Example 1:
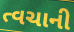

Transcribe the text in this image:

ત્વચાની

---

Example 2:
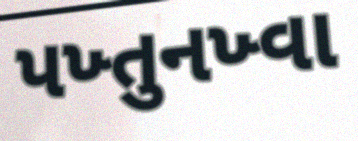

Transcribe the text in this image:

પખ્તુનખ્વા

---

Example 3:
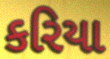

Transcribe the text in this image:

કરિયા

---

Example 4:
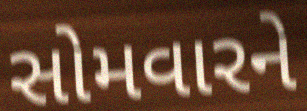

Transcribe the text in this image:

સોમવારને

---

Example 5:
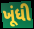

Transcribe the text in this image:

ખૂંધી